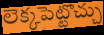
లెక్కపెట్టొచ్చు